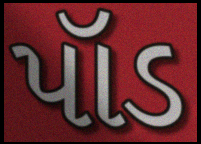
પૉડ